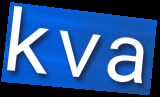
kva